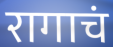
रागाचं